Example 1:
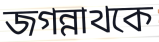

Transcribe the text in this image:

জগন্নাথকে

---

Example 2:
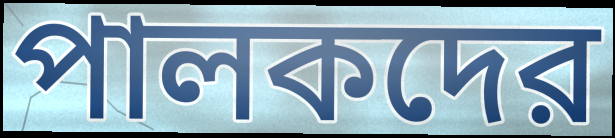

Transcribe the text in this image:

পালকদের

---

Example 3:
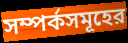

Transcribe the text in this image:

সম্পর্কসমূহের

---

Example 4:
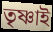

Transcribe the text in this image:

তৃষ্ণাই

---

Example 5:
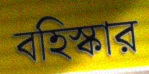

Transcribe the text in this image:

বহিস্কার